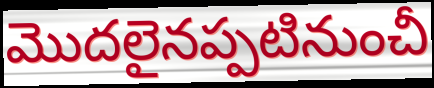
మొదలైనప్పటినుంచీ